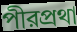
পীরপ্রথা